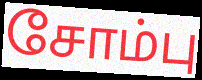
சோம்பு